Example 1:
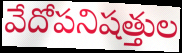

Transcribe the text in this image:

వేదోపనిషత్తుల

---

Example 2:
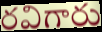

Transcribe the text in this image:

రవిగారు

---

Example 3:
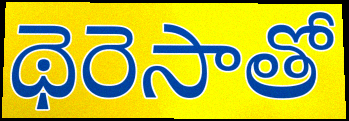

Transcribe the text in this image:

థెరెసాతో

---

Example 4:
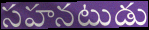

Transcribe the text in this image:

సహనటుడు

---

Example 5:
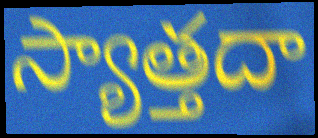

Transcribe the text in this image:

స్యాత్తదా